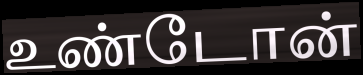
உண்டோன்